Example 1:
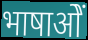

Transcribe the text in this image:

भाषाओें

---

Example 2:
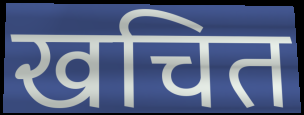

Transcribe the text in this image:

खचित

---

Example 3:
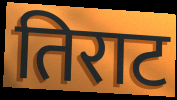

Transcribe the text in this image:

तिराट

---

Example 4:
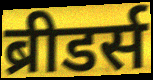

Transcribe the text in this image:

ब्रीडर्स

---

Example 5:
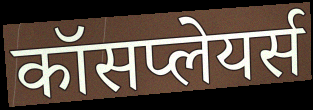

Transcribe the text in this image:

कॉसप्लेयर्स